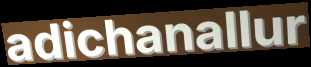
adichanallur